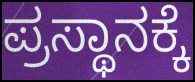
ಪ್ರಸ್ಥಾನಕ್ಕೆ